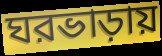
ঘরভাড়ায়